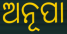
ଅନୂପା